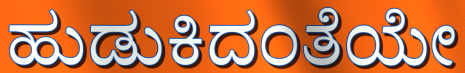
ಹುಡುಕಿದಂತೆಯೇ